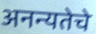
अनन्यतेचे